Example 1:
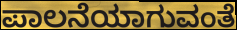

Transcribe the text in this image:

ಪಾಲನೆಯಾಗುವಂತೆ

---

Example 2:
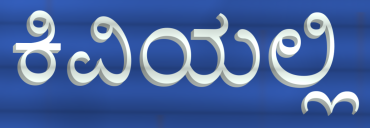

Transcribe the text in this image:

ಕಿವಿಯಲ್ಲಿ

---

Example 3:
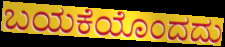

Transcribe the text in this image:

ಬಯಕೆಯೊಂದದು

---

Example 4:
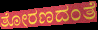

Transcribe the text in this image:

ತೋರಣದಂತೆ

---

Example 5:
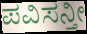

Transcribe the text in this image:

ಪವಿಸನ್ತೀ